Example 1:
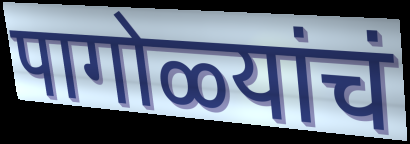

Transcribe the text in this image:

पागोळ्यांचं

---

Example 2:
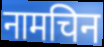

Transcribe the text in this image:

नामचिन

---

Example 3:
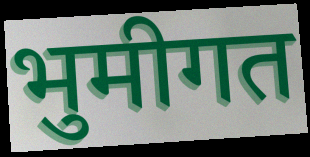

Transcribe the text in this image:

भुमीगत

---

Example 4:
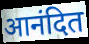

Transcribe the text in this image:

आनंदित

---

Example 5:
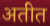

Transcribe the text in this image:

अतीत